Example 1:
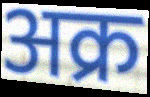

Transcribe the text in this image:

अक्र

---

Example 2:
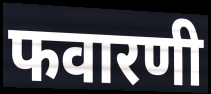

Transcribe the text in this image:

फवारणी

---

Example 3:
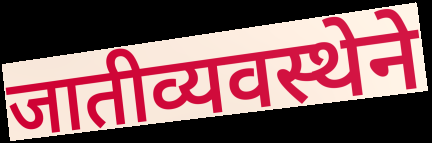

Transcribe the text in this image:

जातीव्यवस्थेने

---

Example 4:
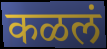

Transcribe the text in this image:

कळलं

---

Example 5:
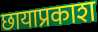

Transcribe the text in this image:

छायाप्रकाश